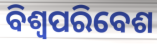
ବିଶ୍ୱପରିବେଶ